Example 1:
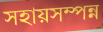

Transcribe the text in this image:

সহায়সম্পন্ন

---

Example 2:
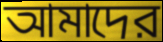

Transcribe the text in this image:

আমাদের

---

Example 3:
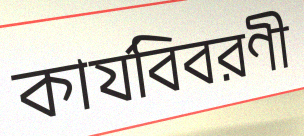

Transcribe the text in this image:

কার্যবিবরণী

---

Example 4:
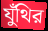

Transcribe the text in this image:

যুঁথির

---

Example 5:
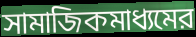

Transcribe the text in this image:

সামাজিকমাধ্যমের